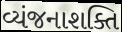
વ્યંજનાશક્તિ